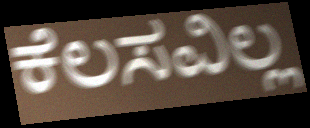
ಕೆಲಸವಿಲ್ಲ